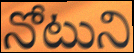
నోటుని